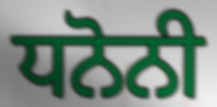
ਧਨੋਨੀ